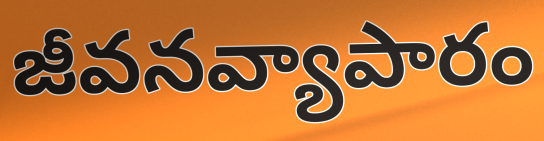
జీవనవ్యాపారం